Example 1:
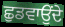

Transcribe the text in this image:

ਛੁਡਵਾਉਂਦੇ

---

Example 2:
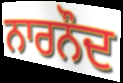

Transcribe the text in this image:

ਨਾਰਨੌਦ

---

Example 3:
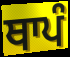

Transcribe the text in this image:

ਥਾਪੰ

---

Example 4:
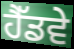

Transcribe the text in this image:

ਹੈੱਡਵੇ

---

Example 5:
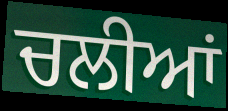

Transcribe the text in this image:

ਚਲੀਆਂ